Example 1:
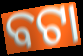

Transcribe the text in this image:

ବଟା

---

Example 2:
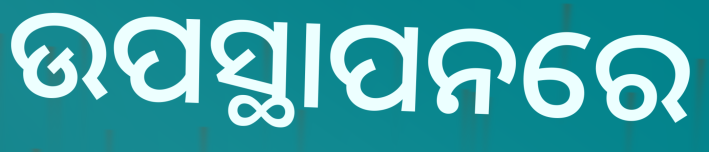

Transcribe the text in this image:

ଉପସ୍ଥାପନରେ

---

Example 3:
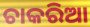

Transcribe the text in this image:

ଚାକରିଆ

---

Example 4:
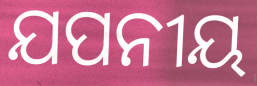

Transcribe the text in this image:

ଯପନୀୟ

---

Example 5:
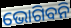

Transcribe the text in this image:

ଭୋଗିବନି